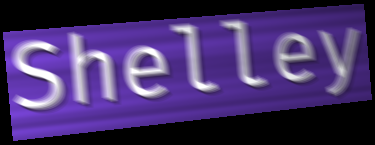
Shelley